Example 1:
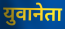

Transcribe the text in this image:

युवानेता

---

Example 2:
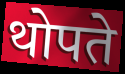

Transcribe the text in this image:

थोपते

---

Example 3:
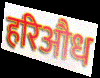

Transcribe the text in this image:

हरिऔध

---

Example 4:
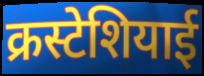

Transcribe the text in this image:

क्रस्टेशियाई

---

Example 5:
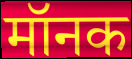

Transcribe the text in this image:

मॉनक